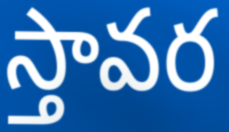
స్తావర